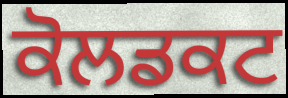
ਕੋਲਡਕਟ